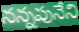
నన్నపునేని